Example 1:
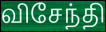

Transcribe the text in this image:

விசேந்தி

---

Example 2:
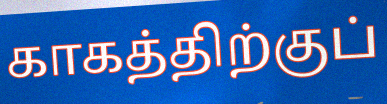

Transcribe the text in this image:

காகத்திற்குப்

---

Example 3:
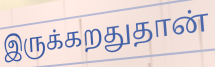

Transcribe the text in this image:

இருக்கறதுதான்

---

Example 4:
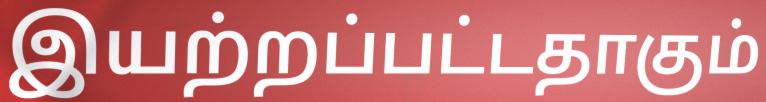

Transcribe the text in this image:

இயற்றப்பட்டதாகும்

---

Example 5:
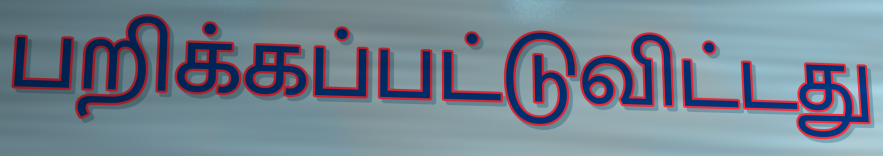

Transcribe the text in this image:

பறிக்கப்பட்டுவிட்டது